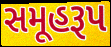
સમૂહરૂપ